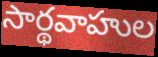
సార్థవాహుల